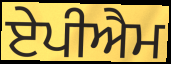
ਏਪੀਐਮ